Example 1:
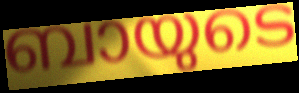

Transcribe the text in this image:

ബായുടെ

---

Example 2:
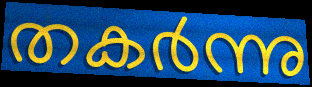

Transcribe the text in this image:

തകർന്നു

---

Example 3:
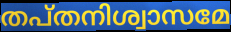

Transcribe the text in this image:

തപ്തനിശ്വാസമേ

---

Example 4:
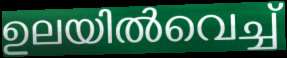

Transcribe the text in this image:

ഉലയിൽവെച്ച്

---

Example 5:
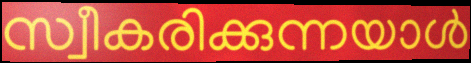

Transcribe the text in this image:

സ്വീകരിക്കുന്നയാൾ